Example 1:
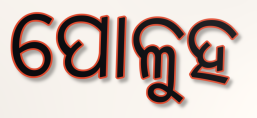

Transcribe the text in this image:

ପୋଳୁହ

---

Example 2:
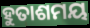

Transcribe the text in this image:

ହୁତାଶମୟ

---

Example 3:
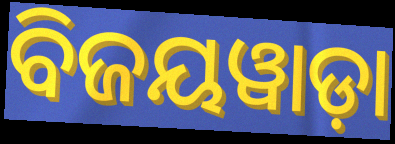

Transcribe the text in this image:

ବିଜୟୱାଡ଼ା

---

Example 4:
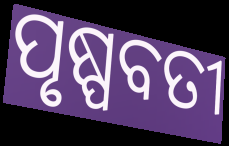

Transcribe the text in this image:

ପୃଷ୍ପବତୀ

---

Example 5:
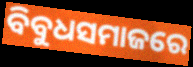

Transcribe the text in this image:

ବିବୁଧସମାଜରେ